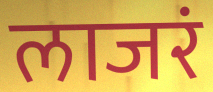
लाजरं